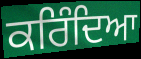
ਕਰਿੰਦਿਆ